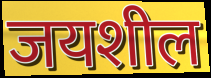
जयशील